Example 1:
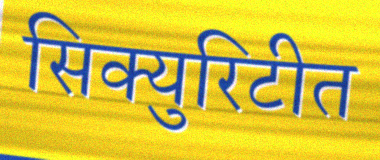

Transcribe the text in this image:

सिक्युरिटीत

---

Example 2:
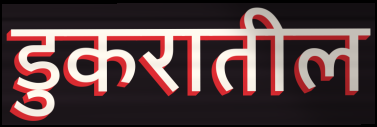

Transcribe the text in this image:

डुकरातील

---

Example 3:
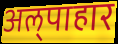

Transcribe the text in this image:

अल्पाहार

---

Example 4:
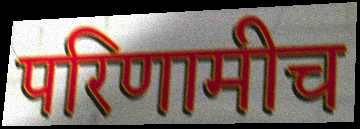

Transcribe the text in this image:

परिणामीच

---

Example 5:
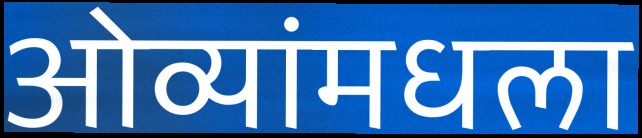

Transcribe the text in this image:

ओव्यांमधला